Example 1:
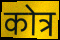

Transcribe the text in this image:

कोत्र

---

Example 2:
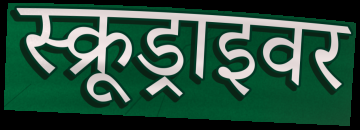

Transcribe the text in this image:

स्क्रूड्राइवर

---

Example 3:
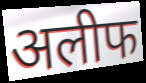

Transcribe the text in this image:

अलीफ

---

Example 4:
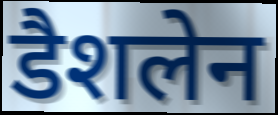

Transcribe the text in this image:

डैशलेन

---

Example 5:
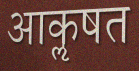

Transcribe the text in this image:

आकॢषत